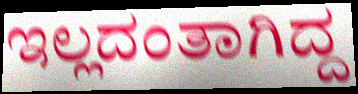
ಇಲ್ಲದಂತಾಗಿದ್ದ